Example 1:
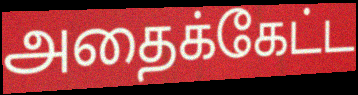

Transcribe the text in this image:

அதைக்கேட்ட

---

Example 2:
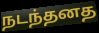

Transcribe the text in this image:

நடந்தனத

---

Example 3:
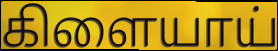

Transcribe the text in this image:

கிளையாய்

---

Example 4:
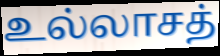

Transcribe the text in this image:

உல்லாசத்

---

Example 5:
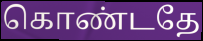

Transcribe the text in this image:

கொண்டதே